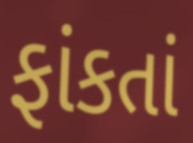
ફાંકતાં